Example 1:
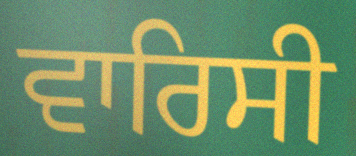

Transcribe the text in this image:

ਵਾਰਿਸੀ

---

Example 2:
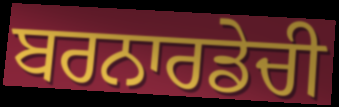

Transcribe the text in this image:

ਬਰਨਾਰਡੇਚੀ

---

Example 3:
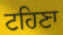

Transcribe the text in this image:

ਟਹਿਣਾ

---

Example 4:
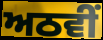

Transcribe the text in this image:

ਅਠਵੀਂ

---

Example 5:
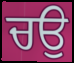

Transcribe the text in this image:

ਚਉ